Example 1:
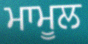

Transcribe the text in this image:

ਮਾਮੂਲ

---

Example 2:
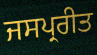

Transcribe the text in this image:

ਜਸਪ੍ਰਰੀਤ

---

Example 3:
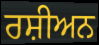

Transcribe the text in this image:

ਰਸ਼ੀਅਨ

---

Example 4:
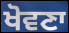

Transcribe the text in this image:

ਖੋਵਣਾ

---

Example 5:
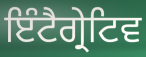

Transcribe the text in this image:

ਇੰਟੈਗ੍ਰੇਟਿਵ